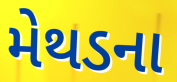
મેથડના